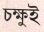
চক্ষুই